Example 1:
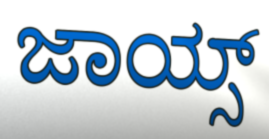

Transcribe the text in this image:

ಜಾಯ್ಸ್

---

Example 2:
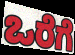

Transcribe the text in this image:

ಒರೆಗೆ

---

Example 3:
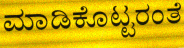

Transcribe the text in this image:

ಮಾಡಿಕೊಟ್ಟರಂತೆ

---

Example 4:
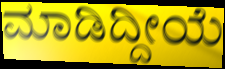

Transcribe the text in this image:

ಮಾಡಿದ್ದೀಯೆ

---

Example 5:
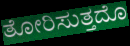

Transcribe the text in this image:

ತೋರಿಸುತ್ತದೊ